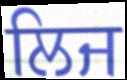
ਲਿਜ